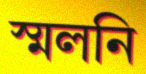
স্মলনি